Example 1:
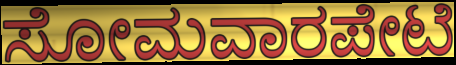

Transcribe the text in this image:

ಸೋಮವಾರಪೇಟೆ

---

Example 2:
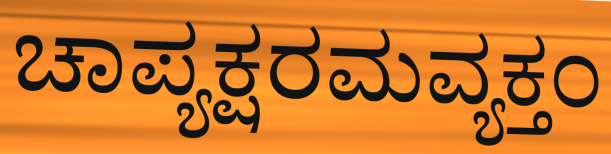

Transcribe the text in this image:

ಚಾಪ್ಯಕ್ಷರಮವ್ಯಕ್ತಂ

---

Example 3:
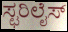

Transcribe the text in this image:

ಸ್ಟರಿಲೈಸ್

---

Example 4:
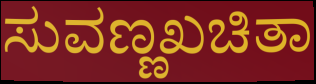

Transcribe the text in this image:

ಸುವಣ್ಣಖಚಿತಾ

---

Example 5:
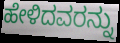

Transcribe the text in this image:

ಹೇಳಿದವರನ್ನು